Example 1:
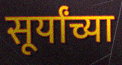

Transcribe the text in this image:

सूर्यांच्या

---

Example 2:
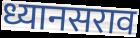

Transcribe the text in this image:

ध्यानसराव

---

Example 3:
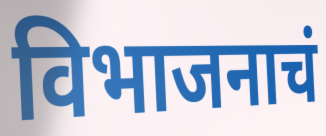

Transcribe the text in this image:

विभाजनाचं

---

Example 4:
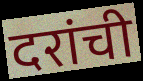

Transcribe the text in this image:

दरांची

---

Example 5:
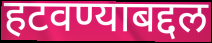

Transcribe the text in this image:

हटवण्याबद्दल